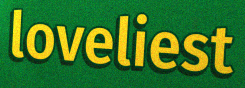
loveliest